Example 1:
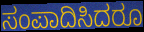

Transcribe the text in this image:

ಸಂಪಾದಿಸಿದರೂ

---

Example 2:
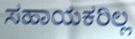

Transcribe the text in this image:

ಸಹಾಯಕರಿಲ್ಲ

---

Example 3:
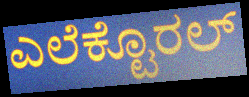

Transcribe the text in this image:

ಎಲೆಕ್ಟೊರಲ್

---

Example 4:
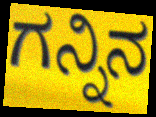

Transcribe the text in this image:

ಗನ್ನಿನ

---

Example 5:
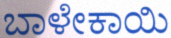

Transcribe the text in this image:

ಬಾಳೇಕಾಯಿ